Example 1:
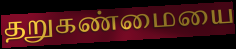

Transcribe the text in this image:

தறுகண்மையை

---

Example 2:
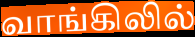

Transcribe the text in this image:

வாங்கிலில்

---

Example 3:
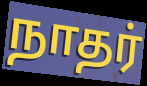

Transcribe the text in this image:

நாதர்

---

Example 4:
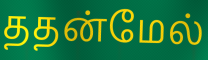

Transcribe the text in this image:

ததன்மேல்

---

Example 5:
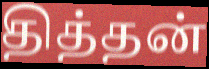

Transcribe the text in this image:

தித்தன்